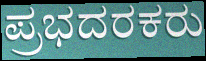
ಪ್ರಭದರಕರು